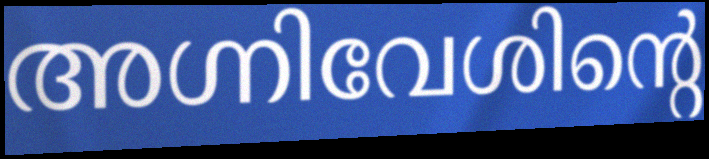
അഗ്നിവേശിന്റെ